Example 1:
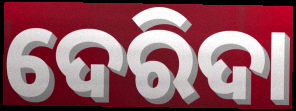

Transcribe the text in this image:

ଦେରିଦା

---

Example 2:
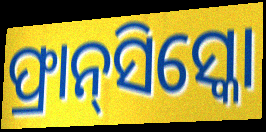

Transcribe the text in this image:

ଫ୍ରାନ୍‌ସିସ୍କୋ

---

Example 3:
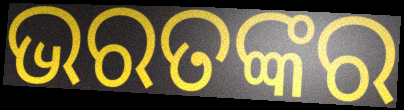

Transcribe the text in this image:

ଭରତଙ୍କର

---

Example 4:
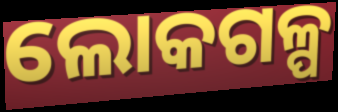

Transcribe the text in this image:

ଲୋକଗଳ୍ପ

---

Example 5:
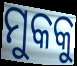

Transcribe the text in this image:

ମୁକକୁ